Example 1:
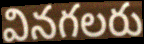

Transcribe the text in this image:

వినగలరు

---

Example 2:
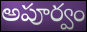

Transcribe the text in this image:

అపూర్వం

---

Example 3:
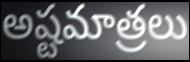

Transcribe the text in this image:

అష్టమాత్రలు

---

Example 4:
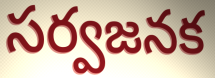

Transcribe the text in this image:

సర్వజనక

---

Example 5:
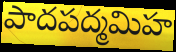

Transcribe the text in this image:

పాదపద్మమిహ